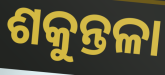
ଶକୁନ୍ତଳା